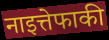
नाइत्तेफाकी